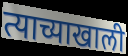
त्याच्याखाली